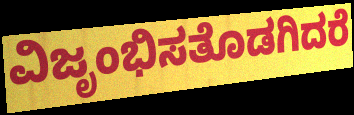
ವಿಜೃಂಭಿಸತೊಡಗಿದರೆ